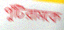
পুঁটিরামকে